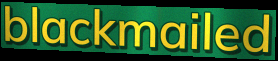
blackmailed